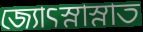
জ্যোৎস্নাস্নাত